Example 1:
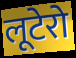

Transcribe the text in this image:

लूटेरो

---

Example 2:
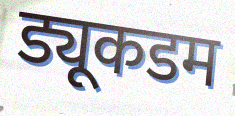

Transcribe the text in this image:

ड्यूकडम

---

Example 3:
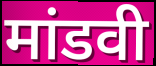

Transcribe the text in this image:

मांडवी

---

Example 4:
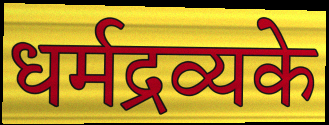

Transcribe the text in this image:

धर्मद्रव्यके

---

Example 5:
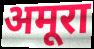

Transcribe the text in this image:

अमूरा